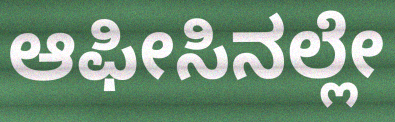
ಆಫೀಸಿನಲ್ಲೇ